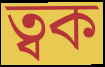
ত্বক